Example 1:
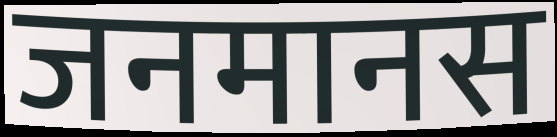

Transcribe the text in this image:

जनमानस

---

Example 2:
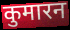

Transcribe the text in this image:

कुमारन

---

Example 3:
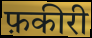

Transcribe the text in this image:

फ़कीरी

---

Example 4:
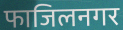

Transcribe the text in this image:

फाजिलनगर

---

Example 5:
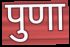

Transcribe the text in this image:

पुणा